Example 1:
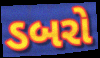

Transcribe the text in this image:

ડબરો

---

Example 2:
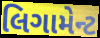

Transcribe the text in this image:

લિગામેન્ટ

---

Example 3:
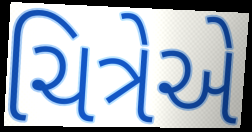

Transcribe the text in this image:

ચિત્રેએ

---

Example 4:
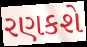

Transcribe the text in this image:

રણકશે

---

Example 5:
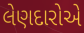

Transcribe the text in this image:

લેણદારોએ